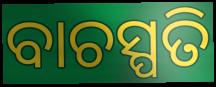
ବାଚସ୍ପତି